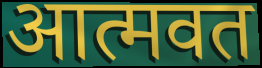
आत्मवत